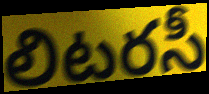
లిటరసీ